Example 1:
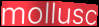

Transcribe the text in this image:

mollusc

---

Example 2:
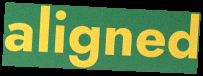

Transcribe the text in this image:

aligned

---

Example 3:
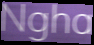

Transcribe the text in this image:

Ngha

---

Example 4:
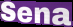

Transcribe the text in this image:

Sena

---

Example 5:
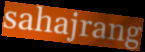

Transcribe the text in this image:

sahajrang